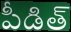
పీడిత్